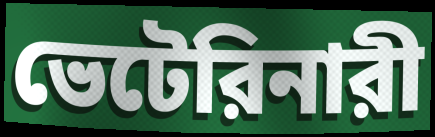
ভেটেরিনারী